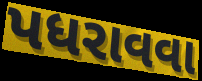
પધરાવવા